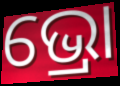
ଭ୍ରୋ